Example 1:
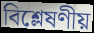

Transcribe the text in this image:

বিশ্লেষণীয়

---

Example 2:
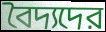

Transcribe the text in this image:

বৈদ্যদের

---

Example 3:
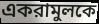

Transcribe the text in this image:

একরামুলকে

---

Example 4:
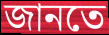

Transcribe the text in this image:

জানতে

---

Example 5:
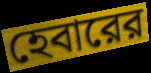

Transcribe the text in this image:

হেবারের